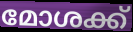
മോശക്ക്